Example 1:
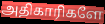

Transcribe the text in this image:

அதிகாரிகளே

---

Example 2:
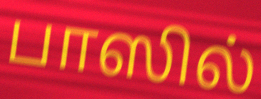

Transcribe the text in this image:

பாஸில்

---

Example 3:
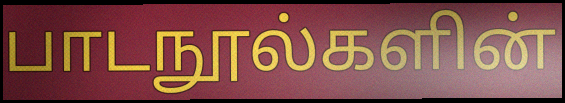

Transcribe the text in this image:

பாடநூல்களின்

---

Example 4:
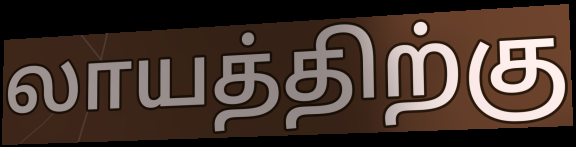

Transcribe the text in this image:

லாயத்திற்கு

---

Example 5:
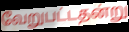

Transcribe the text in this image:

வேறுபட்டதன்று